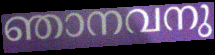
ഞാനവനു